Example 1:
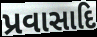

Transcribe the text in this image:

પ્રવાસાદિ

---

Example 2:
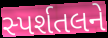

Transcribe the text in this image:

સ્પર્શતલને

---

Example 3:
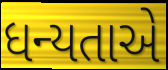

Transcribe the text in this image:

ધન્યતાએ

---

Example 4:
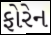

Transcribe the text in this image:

ફોરેન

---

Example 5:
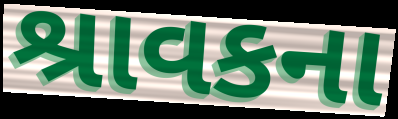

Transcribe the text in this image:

શ્રાવકના